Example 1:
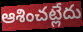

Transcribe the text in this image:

ఆశించట్లేదు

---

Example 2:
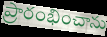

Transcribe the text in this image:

ప్రారంభించాను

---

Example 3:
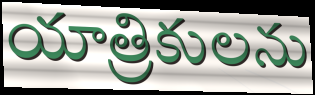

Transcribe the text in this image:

యాత్రికులను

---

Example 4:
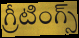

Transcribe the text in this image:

గ్రీటింగ్స్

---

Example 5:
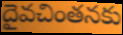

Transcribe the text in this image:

దైవచింతనకు